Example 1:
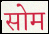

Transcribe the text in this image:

सोम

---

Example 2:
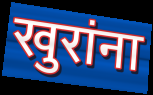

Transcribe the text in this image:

खुरांना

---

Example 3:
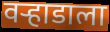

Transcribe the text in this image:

वऱ्हाडाला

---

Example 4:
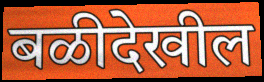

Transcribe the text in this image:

बळीदेखील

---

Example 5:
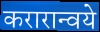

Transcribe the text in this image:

करारान्वये